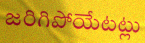
జరిగిపోయేటట్లు